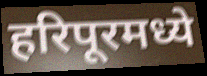
हरिपूरमध्ये